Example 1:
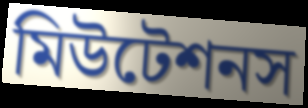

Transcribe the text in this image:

মিউটেশনস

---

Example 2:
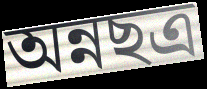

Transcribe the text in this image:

অন্নছত্র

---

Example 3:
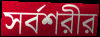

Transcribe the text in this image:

সর্বশরীর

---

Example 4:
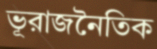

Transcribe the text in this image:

ভূরাজনৈতিক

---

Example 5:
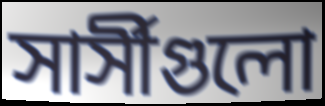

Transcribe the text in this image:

সার্সীগুলো